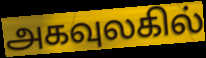
அகவுலகில்